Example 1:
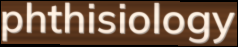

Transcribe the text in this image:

phthisiology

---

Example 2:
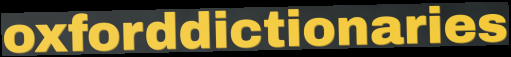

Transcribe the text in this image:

oxforddictionaries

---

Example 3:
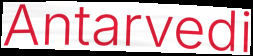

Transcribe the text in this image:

Antarvedi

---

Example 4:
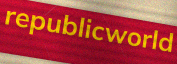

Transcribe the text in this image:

republicworld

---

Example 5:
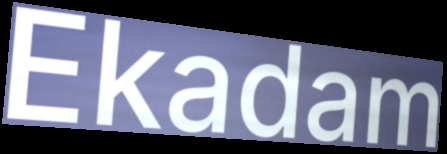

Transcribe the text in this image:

Ekadam